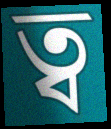
ত্ব